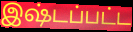
இஷ்டப்பட்ட